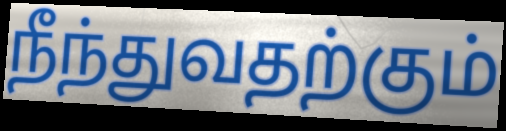
நீந்துவதற்கும்